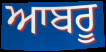
ਆਬਰੂ